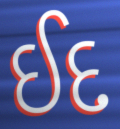
ઈદ